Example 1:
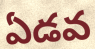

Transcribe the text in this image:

ఏడవ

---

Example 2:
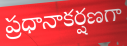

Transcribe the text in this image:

ప్రధానాకర్షణగా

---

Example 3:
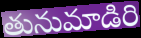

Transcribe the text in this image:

తునుమాడిరి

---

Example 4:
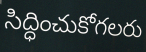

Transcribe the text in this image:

సిద్ధించుకోగలరు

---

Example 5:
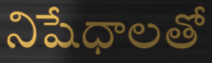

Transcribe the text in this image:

నిషేధాలతో